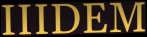
IIIDEM